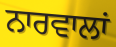
ਨਾਰਵਾਲਾਂ